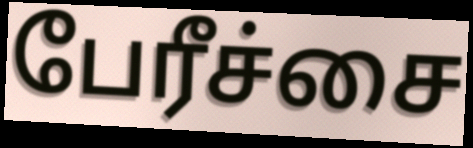
பேரீச்சை